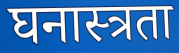
घनास्त्रता